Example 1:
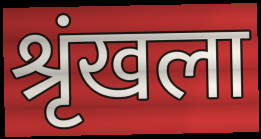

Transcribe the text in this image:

श्रृंखला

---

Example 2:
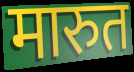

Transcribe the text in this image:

मारुत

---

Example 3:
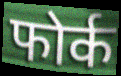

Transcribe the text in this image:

फोर्क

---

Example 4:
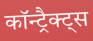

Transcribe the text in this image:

कॉन्‍ट्रैक्‍ट्स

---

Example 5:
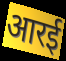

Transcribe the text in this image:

आरई